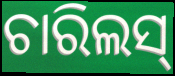
ଚାରିଲସ୍